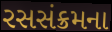
રસસંક્રમના